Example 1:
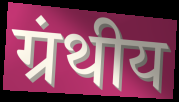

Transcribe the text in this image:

ग्रंथीय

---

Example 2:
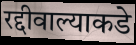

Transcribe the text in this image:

रद्दीवाल्याकडे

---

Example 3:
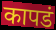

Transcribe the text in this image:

कापडं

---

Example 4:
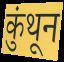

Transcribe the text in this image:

कुंथून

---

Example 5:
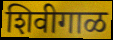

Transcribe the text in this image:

शिवीगाळ